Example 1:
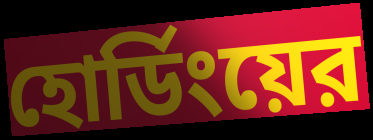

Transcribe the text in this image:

হোর্ডিংয়ের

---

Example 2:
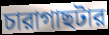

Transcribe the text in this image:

চারাগাছটার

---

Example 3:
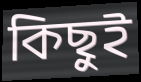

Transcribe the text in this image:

কিছুই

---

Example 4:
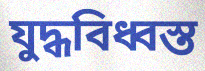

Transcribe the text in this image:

যুদ্ধবিধ্বস্ত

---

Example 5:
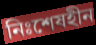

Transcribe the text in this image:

নিঃশেষহীন